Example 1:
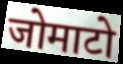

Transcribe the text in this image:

जोमाटो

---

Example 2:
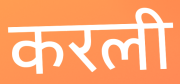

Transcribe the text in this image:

करली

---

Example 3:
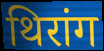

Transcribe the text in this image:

थिरांग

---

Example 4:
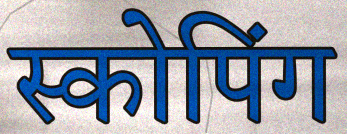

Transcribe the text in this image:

स्कोपिंग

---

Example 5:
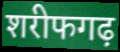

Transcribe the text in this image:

शरीफगढ़